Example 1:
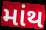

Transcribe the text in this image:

માંથ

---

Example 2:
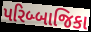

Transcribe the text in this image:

પરિબ્બાજિકા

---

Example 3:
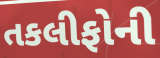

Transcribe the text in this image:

તકલીફોની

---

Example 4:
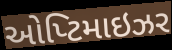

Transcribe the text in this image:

ઓપ્ટિમાઇઝર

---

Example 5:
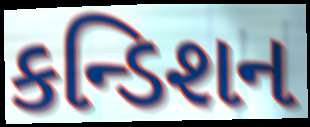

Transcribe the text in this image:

કન્ડિશન